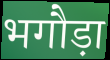
भगौड़ा